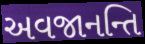
અવજાનન્તિ